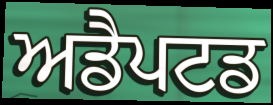
ਅਡੈਪਟਡ